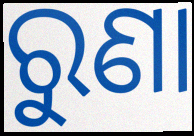
ରୁଣା